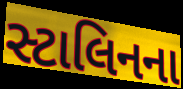
સ્ટાલિનના